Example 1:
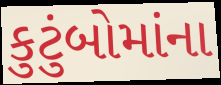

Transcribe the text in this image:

કુટુંબોમાંના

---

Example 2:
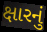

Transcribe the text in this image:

ક્ષારનું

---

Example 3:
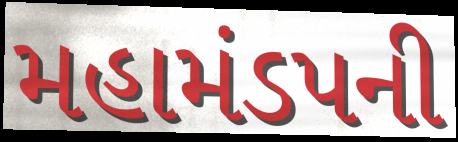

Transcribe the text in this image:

મહામંડપની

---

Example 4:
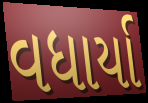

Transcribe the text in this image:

વધાર્યા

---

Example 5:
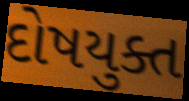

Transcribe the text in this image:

દોષયુક્ત